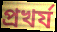
প্রখর্য